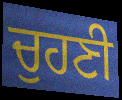
ਚੁਹਣੀ